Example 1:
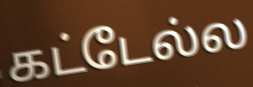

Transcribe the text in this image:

கட்டேல்ல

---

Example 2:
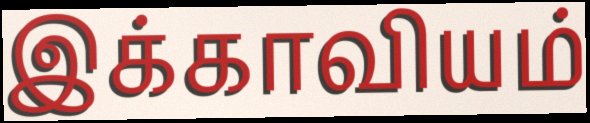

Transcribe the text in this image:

இக்காவியம்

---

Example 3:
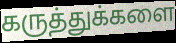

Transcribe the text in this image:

கருத்துக்களை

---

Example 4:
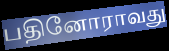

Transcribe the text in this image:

பதினோராவது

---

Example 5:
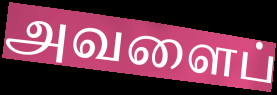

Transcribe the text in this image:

அவளைப்